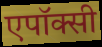
एपॉक्सी